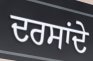
ਦਰਸਾਂਦੇ